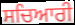
ਸਚਿਆਰੀ